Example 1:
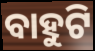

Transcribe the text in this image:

ବାହୁଟି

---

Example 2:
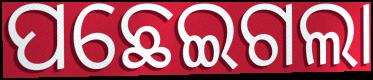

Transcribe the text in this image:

ପଛେଇଗଲା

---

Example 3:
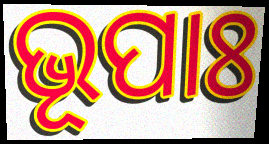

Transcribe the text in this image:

ଭୂପାଃ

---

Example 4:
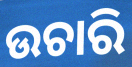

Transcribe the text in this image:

ଉଚାରି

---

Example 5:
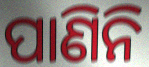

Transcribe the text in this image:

ପାଣିନି